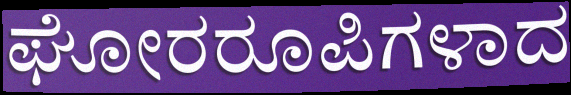
ಘೋರರೂಪಿಗಳಾದ